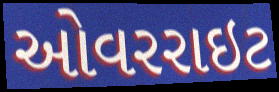
ઓવરરાઇટ